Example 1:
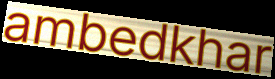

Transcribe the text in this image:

ambedkhar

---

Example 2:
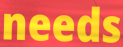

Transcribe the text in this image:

needs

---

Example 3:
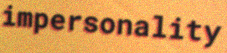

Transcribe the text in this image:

impersonality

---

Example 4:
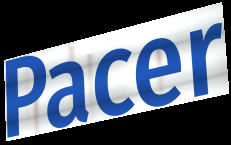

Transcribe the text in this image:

Pacer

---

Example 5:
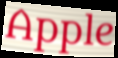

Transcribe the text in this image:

Apple